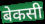
बेकसी